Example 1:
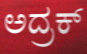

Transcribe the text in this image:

ಅದ್ರಕ್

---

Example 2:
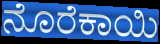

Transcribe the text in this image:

ನೊರೆಕಾಯಿ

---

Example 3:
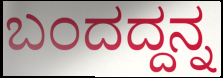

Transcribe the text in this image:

ಬಂದದ್ದನ್ನ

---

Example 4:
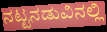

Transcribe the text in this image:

ನಟ್ಟನಡುವಿನಲ್ಲಿ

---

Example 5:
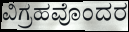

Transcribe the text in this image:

ವಿಗ್ರಹವೊಂದರ